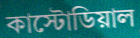
কাস্টোডিয়াল